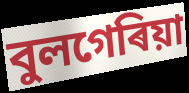
বুলগেৰিয়া